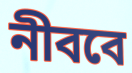
নীববে